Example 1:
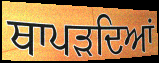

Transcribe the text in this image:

ਥਾਪੜਦਿਆਂ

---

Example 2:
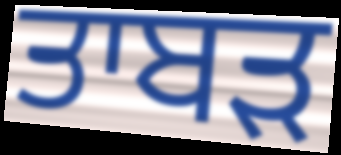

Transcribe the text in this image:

ਤਾਬੜ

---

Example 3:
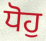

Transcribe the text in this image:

ਧੋਹੁ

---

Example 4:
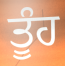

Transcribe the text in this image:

ਤੂੰਹ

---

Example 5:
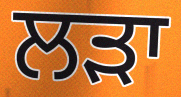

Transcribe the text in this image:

ਲੜਾ